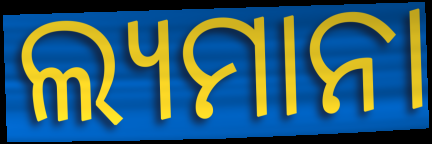
ଲ୍ୟମାନା